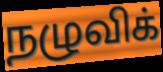
நழுவிக்